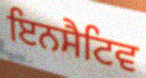
ਇਨਸੈਟਿਵ